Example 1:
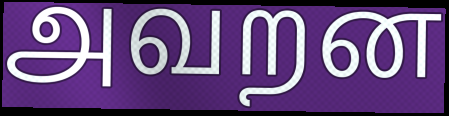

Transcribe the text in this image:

அவறன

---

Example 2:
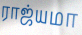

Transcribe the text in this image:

ராஜ்யமா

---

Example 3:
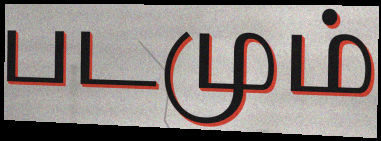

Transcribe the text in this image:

படமும்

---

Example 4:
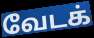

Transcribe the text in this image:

வேடக்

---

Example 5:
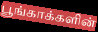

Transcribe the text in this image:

பூங்காக்களின்